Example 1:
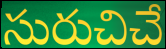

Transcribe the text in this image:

సురుచిచే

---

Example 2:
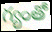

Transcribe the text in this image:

గ్యంతో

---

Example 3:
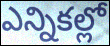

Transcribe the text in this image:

ఎన్నికల్లో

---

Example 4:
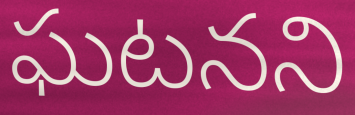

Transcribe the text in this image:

ఘటనని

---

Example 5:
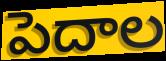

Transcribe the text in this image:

పెదాల